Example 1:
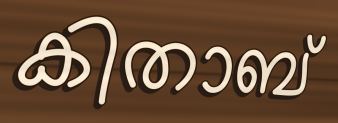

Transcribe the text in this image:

കിതാബ്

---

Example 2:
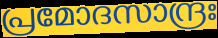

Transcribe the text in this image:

പ്രമോദസാന്ദ്രഃ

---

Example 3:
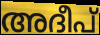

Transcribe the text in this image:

അദീപ്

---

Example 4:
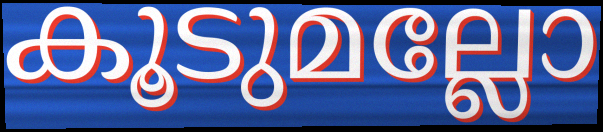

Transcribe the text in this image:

കൂടുമല്ലോ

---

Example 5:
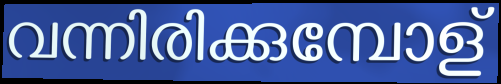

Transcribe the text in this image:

വന്നിരിക്കുമ്പോള്